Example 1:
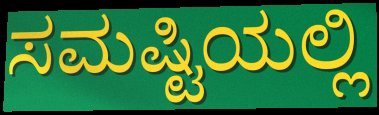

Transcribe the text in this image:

ಸಮಷ್ಟಿಯಲ್ಲಿ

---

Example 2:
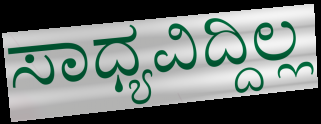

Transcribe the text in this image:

ಸಾಧ್ಯವಿದ್ದಿಲ್ಲ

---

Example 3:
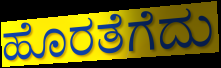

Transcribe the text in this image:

ಹೊರತೆಗೆದು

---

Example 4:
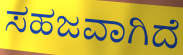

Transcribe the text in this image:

ಸಹಜವಾಗಿದೆ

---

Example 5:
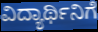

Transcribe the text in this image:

ವಿದ್ಯಾರ್ಥಿನಿಗೆ